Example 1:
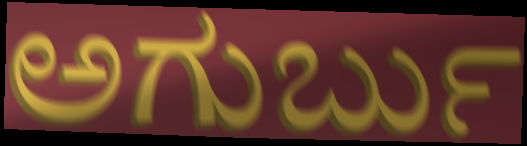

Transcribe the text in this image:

ಅಗುರ್ಬು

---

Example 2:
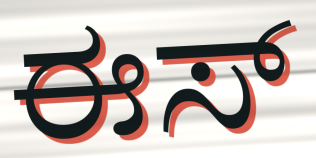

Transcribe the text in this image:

ಈಸ್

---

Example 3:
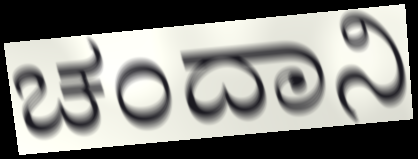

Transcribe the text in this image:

ಚಂದಾನಿ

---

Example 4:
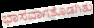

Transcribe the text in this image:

ಭಾಸವಾಗತೊಡಗಿತು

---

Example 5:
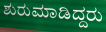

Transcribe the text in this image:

ಶುರುಮಾಡಿದ್ದರು